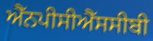
ਐੱਨਪੀਸੀਐੱਸਸੀਬੀ